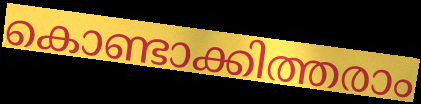
കൊണ്ടാക്കിത്തരാം